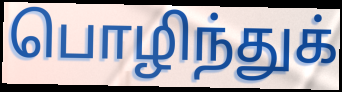
பொழிந்துக்